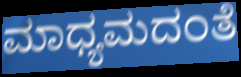
ಮಾಧ್ಯಮದಂತೆ